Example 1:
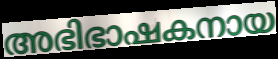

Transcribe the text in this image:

അഭിഭാഷകനായ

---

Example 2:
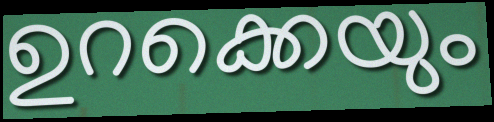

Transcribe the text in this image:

ഉറക്കെയും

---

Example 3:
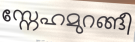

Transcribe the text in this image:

സ്നേഹമുറങ്ങീ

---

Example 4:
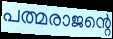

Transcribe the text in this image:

പത്മരാജന്റെ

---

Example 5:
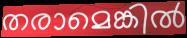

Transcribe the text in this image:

തരാമെങ്കിൽ